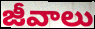
జీవాలు